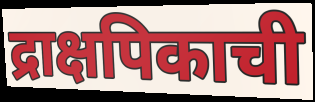
द्राक्षपिकाची